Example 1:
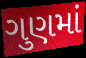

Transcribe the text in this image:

ગુણમાં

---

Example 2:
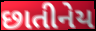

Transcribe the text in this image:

છાતીનેય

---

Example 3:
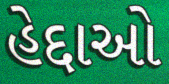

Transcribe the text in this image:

હેદ્દાઓ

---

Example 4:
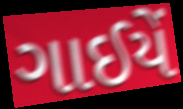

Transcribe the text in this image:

ગાઈયેં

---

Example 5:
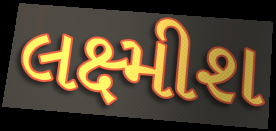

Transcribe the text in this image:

લક્ષ્મીશ